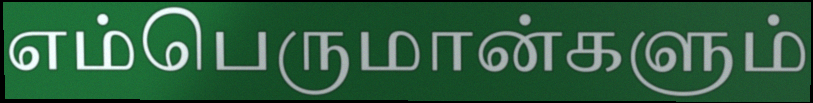
எம்பெருமான்களும்